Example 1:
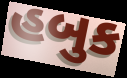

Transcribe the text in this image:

હબુક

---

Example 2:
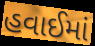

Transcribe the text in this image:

હવાઈમાં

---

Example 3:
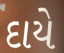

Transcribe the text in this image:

દાયે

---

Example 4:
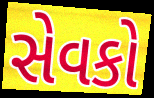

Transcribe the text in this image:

સેવકો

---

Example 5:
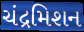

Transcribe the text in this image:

ચંદ્રમિશન